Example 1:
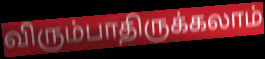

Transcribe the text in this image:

விரும்பாதிருக்கலாம்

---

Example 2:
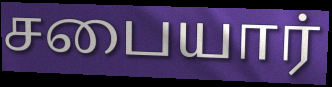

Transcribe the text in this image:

சபையார்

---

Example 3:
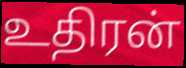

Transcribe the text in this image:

உதிரன்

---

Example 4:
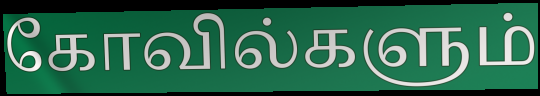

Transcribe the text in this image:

கோவில்களும்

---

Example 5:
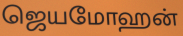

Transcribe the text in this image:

ஜெயமோஹன்